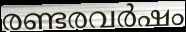
രണ്ടരവർഷം